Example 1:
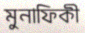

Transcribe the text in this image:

মুনাফিকী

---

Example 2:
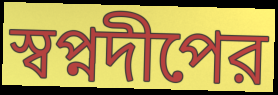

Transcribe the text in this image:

স্বপ্নদীপের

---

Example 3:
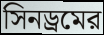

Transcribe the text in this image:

সিনড্রমের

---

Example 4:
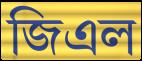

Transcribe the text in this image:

জিএল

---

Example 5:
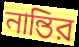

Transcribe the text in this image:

নান্তির